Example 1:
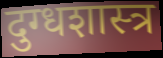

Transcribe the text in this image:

दुग्धशास्त्र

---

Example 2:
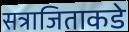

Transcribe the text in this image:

सत्राजिताकडे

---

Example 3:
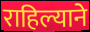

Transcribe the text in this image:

राहिल्याने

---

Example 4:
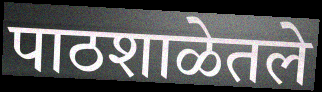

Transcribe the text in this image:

पाठशाळेतले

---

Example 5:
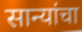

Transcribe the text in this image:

सान्यांचा